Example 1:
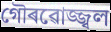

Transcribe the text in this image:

গৌৰৱোজ্জ্বল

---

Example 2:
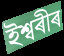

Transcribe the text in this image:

ইশ্বৰীৰ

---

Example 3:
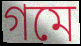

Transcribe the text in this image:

গমে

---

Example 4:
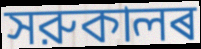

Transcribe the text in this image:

সৰুকালৰ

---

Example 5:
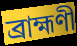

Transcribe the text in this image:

ব্ৰাহ্মণী